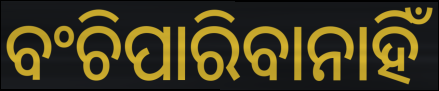
ବଂଚିପାରିବାନାହିଁ